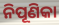
ନିପୂଣିକା